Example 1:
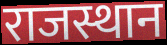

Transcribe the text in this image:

राजस्थान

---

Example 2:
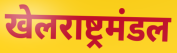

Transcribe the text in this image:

खेलराष्ट्रमंडल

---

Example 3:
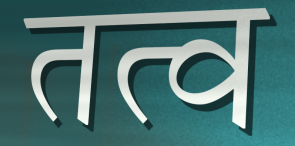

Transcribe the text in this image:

तत्व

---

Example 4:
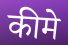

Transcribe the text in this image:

कीमे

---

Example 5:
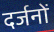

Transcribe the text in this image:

दर्जनों